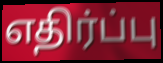
எதிர்ப்பு